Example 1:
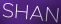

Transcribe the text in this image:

SHAN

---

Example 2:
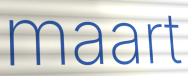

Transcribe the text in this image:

maart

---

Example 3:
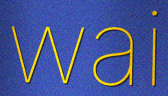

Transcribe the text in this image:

wai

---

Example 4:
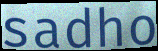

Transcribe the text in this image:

sadho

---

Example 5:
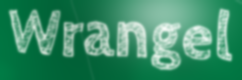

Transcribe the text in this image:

Wrangel